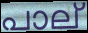
പാല്